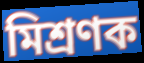
মিশ্ৰণক